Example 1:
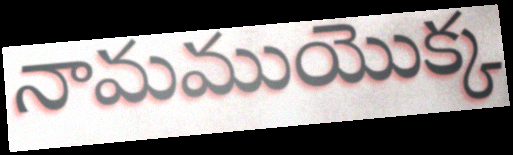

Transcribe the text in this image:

నామముయొక్క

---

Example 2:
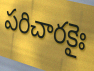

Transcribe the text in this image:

పరిచారకైః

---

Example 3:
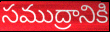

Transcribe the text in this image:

సముద్రానికి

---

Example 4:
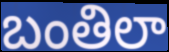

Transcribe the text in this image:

బంతిలా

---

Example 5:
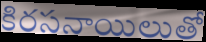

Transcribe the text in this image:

కిరసనాయిలుతో